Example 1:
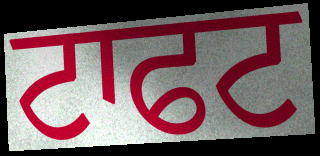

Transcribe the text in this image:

ਟਾਫਟ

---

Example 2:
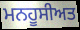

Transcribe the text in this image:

ਮਨਹੂਸੀਅਤ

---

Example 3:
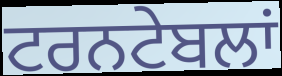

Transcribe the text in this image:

ਟਰਨਟੇਬਲਾਂ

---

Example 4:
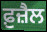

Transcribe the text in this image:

ਫ਼ੁਜ਼ੈਲ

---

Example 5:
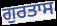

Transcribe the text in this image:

ਗੁਰਤਾਸ